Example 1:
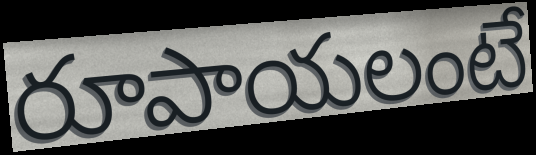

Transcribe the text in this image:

రూపాయలంటే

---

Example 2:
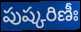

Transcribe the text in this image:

పుష్కరిణీః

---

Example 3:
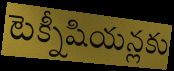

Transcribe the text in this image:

టెక్నీషియన్లకు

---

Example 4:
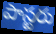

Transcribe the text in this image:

పాస్టరు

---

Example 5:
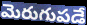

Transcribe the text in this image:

మెరుగుపడే